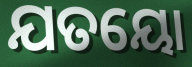
ଯତୟୋ